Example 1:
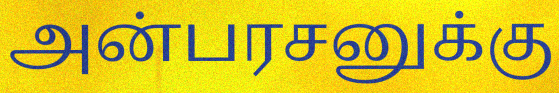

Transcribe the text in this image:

அன்பரசனுக்கு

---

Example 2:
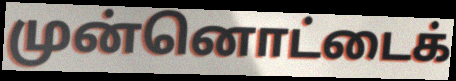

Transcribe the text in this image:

முன்னொட்டைக்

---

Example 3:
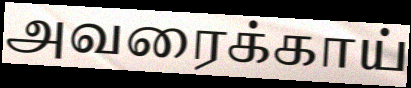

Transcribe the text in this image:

அவரைக்காய்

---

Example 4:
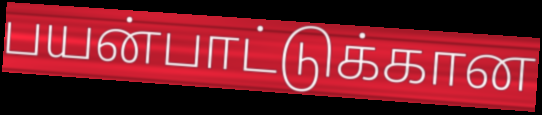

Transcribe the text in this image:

பயன்பாட்டுக்கான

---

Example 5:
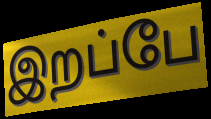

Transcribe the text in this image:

இறப்பே